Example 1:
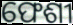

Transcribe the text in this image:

ଫେଶୀ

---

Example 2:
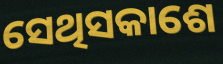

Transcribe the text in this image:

ସେଥିସକାଶେ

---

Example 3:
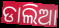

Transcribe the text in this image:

ଡାଲିଆ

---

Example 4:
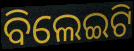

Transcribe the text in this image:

ବିଲେଇଟି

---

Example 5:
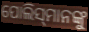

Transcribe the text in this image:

ପୋଲିସ୍‌ମାନଙ୍କୁ